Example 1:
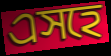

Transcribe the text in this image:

এসহে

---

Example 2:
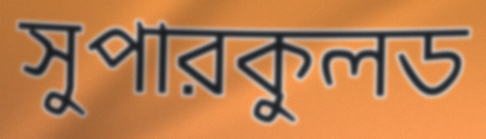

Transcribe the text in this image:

সুপারকুলড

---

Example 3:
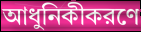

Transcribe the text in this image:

আধুনিকীকরণে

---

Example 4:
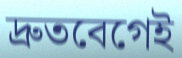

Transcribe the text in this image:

দ্রুতবেগেই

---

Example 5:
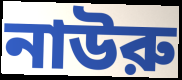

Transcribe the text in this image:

নাউরু